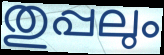
തുപ്പലും